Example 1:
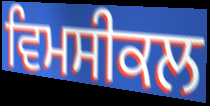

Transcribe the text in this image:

ਵਿਮਸੀਕਲ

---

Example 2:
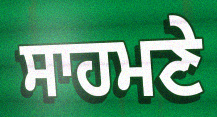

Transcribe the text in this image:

ਸਾਹਮਣੇ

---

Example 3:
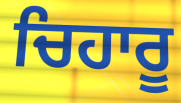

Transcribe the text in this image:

ਚਿਹਾਰੂ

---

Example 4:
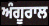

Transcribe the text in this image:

ਅੰਗੂਰਾਲ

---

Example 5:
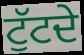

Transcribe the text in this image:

ਟੁੱਟਦੇ